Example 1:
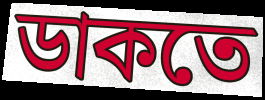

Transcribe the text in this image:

ডাকতে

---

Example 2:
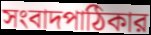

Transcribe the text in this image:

সংবাদপাঠিকার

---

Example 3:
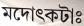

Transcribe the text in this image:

মদোৎকটাঃ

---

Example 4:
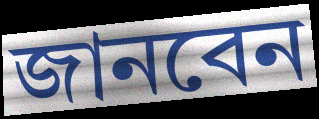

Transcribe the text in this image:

জানবেন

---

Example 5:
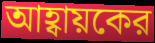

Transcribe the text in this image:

আহ্বায়কের